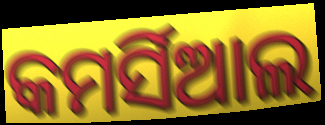
କମର୍ସିଆଲ